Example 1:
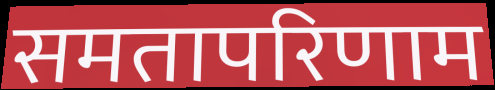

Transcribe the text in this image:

समतापरिणाम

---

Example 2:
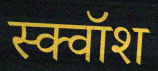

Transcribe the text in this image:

स्क्वॉश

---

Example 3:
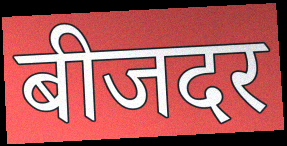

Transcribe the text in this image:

बीजदर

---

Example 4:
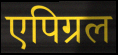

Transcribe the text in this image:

एपिग्रल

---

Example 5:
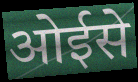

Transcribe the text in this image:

ओईसे